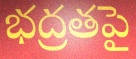
భద్రతపై